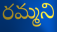
రమ్మని